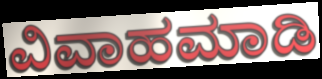
ವಿವಾಹಮಾಡಿ